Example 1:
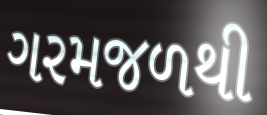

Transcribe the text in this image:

ગરમજળથી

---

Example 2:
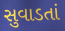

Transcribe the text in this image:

સુવાડતાં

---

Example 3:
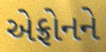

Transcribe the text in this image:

એફ્રોનને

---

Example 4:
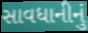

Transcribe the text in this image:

સાવધાનીનું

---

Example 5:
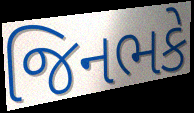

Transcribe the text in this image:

જિનભકે